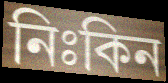
নিঃকিন